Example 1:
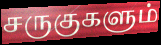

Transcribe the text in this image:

சருகுகளும்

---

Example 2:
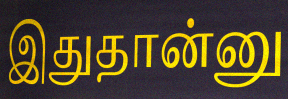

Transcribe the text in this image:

இதுதான்னு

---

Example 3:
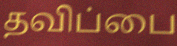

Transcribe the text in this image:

தவிப்பை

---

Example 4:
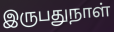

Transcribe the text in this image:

இருபதுநாள்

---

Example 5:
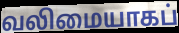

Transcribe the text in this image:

வலிமையாகப்